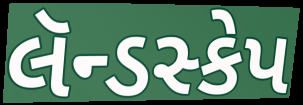
લૅન્ડસ્કેપ